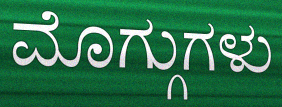
ಮೊಗ್ಗುಗಳು